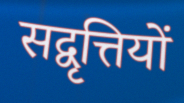
सद्वृत्तियों